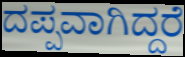
ದಪ್ಪವಾಗಿದ್ದರೆ